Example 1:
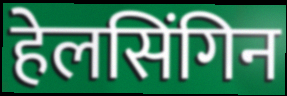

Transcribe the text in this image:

हेलसिंगिन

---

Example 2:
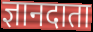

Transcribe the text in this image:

ज्ञानदाता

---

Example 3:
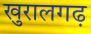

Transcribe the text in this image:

खुरालगढ़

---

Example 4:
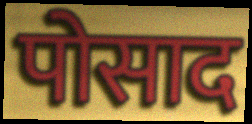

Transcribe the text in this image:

पोसाद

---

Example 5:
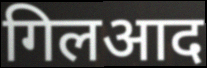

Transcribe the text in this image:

गिलआद